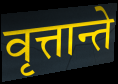
वृत्तान्ते